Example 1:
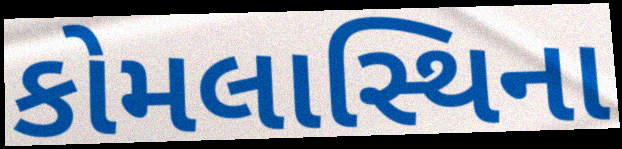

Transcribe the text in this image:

કોમલાસ્થિના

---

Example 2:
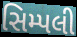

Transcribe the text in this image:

સિમ્પલી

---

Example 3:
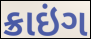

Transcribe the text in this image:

ક્રાઇંગ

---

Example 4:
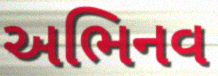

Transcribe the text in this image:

અભિનવ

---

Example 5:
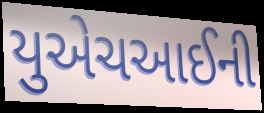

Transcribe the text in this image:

યુએચઆઈની